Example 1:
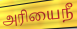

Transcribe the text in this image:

அரியைநீ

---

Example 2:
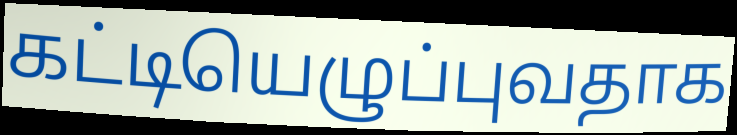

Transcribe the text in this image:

கட்டியெழுப்புவதாக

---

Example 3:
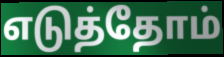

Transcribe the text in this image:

எடுத்தோம்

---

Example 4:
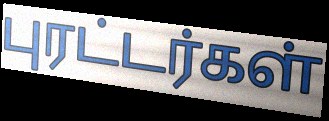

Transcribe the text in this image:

புரட்டர்கள்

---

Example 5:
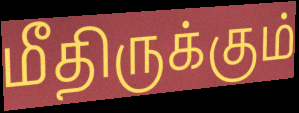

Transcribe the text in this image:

மீதிருக்கும்